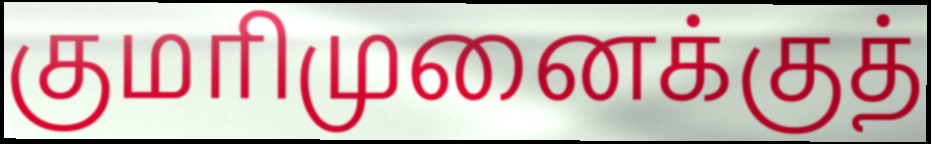
குமரிமுனைக்குத்